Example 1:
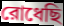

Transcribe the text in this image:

রোধেছি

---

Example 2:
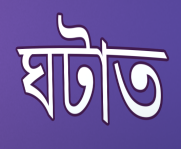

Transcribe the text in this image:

ঘটাত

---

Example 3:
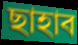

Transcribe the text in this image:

ছাহাব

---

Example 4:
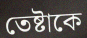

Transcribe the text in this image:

তেষ্টাকে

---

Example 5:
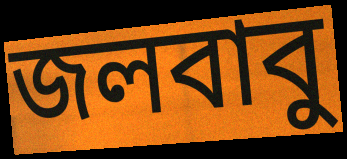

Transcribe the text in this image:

জলবাবু